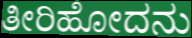
ತೀರಿಹೋದನು